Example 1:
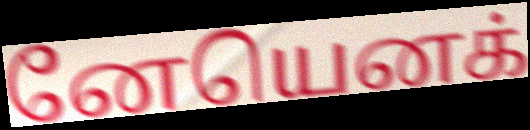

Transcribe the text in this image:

னேயெனக்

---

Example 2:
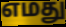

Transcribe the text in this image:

எமது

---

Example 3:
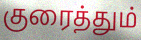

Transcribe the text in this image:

குரைத்தும்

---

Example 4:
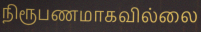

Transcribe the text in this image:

நிரூபணமாகவில்லை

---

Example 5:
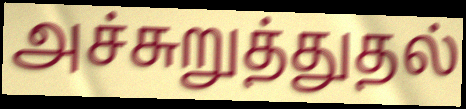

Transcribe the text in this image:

அச்சுறுத்துதல்